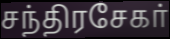
சந்திரசேகர்